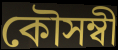
কৌসম্বী